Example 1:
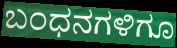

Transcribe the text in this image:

ಬಂಧನಗಳಿಗೂ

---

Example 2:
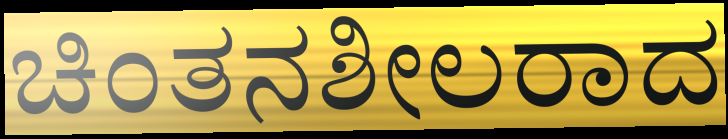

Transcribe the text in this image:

ಚಿಂತನಶೀಲರಾದ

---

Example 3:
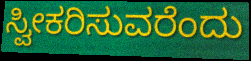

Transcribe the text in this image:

ಸ್ವೀಕರಿಸುವರೆಂದು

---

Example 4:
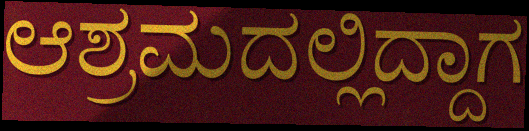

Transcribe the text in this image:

ಆಶ್ರಮದಲ್ಲಿದ್ದಾಗ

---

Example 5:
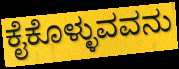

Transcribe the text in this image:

ಕೈಕೊಳ್ಳುವವನು